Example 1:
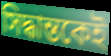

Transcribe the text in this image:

সিদ্ধান্তকেই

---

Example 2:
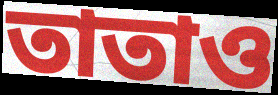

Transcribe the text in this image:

তাতাও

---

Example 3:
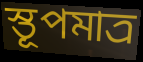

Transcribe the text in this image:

স্তূপমাত্র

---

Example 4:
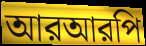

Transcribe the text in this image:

আরআরপি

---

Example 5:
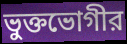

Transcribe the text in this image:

ভুক্তভোগীর